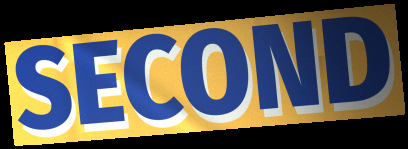
SECOND